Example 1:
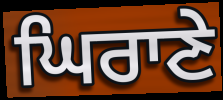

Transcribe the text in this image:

ਘਿਰਾਣੇ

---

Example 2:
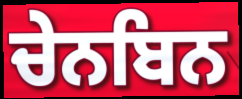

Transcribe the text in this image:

ਚੇਨਬਿਨ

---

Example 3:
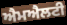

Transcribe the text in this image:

ਐਮਐਲਟੀ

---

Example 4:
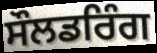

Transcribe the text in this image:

ਸੌਲਡਰਿੰਗ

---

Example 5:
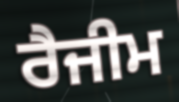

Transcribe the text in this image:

ਰੈਜੀਮ